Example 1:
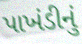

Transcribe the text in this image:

પાખંડીનું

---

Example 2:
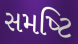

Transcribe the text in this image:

સમષ્‍ટિ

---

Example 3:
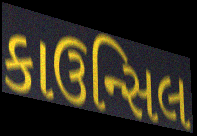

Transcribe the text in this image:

કાઉન્‍સિલ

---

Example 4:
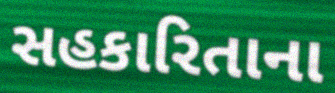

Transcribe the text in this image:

સહકારિતાના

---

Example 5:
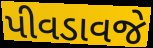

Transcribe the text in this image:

પીવડાવજે